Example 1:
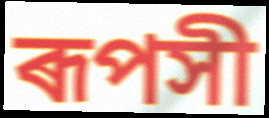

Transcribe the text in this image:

ৰূপসী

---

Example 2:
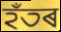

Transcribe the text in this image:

হঁতৰ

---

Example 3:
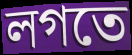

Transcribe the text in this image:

লগতে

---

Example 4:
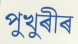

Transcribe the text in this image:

পুখুৰীৰ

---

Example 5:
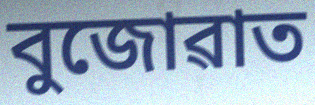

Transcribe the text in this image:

বুজোৱাত